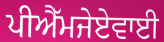
ਪੀਐੱਮਜੇਏਵਾਈ